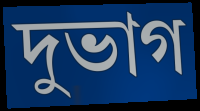
দুভাগ